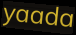
yaada